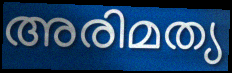
അരിമത്യ